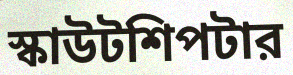
স্কাউটশিপটার